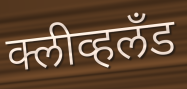
क्लीव्हलँड